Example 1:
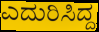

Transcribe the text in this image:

ಎದುರಿಸಿದ್ದ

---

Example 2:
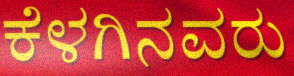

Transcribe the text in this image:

ಕೆಳಗಿನವರು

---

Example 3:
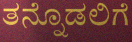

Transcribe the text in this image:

ತನ್ನೊಡಲಿಗೆ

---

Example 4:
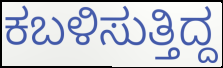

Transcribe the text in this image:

ಕಬಳಿಸುತ್ತಿದ್ದ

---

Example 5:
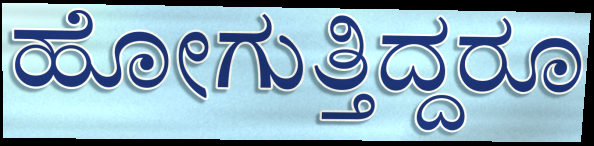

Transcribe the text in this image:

ಹೋಗುತ್ತಿದ್ದರೂ